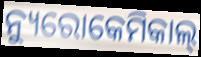
ନ୍ୟୁରୋକେମିକାଲ୍